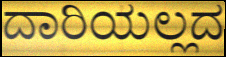
ದಾರಿಯಲ್ಲದ